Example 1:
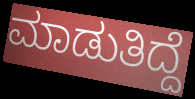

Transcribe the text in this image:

ಮಾಡುತಿದ್ದೆ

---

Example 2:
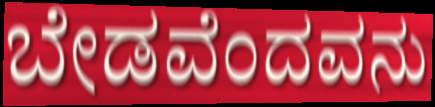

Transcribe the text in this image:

ಬೇಡವೆಂದವನು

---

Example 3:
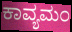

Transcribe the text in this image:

ಕಾವ್ಯಮಂ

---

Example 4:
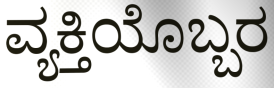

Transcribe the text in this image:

ವ್ಯಕ್ತಿಯೊಬ್ಬರ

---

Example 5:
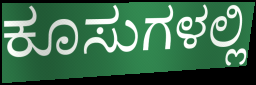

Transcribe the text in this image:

ಕೂಸುಗಳಲ್ಲಿ